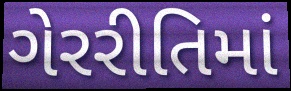
ગેરરીતિમાં